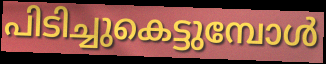
പിടിച്ചുകെട്ടുമ്പോൾ